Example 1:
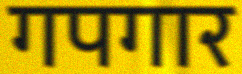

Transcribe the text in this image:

गपगार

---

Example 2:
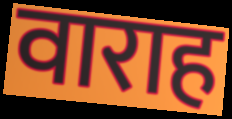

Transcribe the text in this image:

वाराह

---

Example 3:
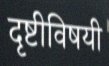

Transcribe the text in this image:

दृष्टीविषयी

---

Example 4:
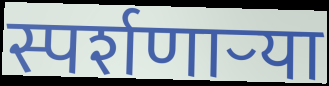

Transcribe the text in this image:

स्पर्शणाऱ्या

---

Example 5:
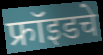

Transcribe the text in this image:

फ्रॉइडचे